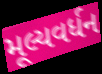
મૂલ્યવર્ધન